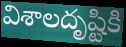
విశాలదృష్టికి